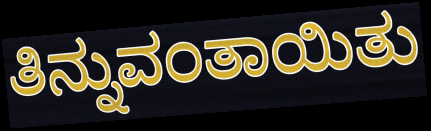
ತಿನ್ನುವಂತಾಯಿತು